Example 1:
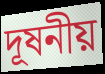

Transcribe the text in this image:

দূষনীয়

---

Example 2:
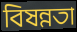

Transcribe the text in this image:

বিষন্নতা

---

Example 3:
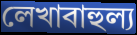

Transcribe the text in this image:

লেখাবাহুল্য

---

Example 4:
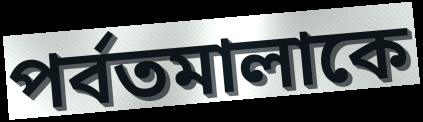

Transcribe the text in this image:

পর্বতমালাকে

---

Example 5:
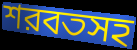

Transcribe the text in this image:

শরবতসহ